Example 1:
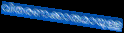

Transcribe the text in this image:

വിതരണക്കാരുമായുള്ള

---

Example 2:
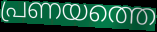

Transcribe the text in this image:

പ്രണയത്തെ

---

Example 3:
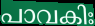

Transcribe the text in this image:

പാവകിഃ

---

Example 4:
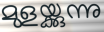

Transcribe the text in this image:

മുളയ്ക്കുന്നു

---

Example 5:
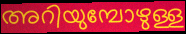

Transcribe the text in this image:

അറിയുമ്പോഴുള്ള